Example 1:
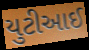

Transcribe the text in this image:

યુટીઆઈ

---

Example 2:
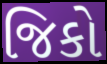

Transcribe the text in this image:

જિકો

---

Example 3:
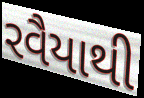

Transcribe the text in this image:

રવૈયાથી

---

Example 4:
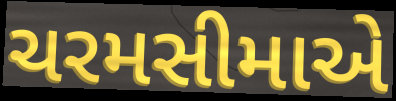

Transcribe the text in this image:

ચરમસીમાએ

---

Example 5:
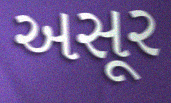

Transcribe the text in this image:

અસૂર